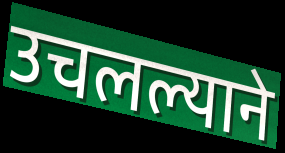
उचलल्याने